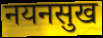
नयनसुख